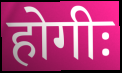
होगीः